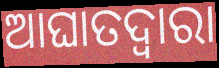
ଆଘାତଦ୍ୱାରା